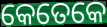
କେତେକେ